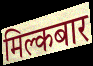
मिल्कबार